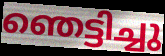
ഞെട്ടിച്ചു